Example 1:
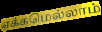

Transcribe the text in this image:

ஏக்கமெல்லாம்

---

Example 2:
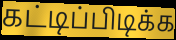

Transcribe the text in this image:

கட்டிப்பிடிக்க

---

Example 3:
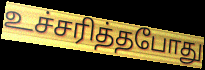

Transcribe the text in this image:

உச்சரித்தபோது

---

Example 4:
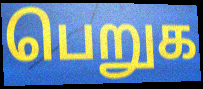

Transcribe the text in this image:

பெறுக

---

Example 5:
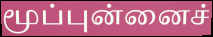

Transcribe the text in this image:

மூப்புன்னைச்